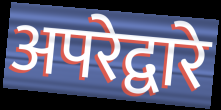
अपरेद्वारे